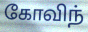
கோவிந்